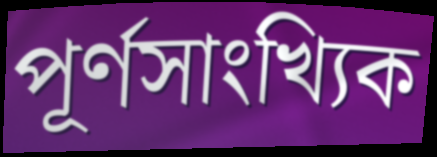
পূর্ণসাংখ্যিক